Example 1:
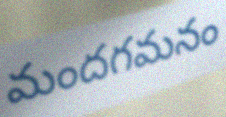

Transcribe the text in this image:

మందగమనం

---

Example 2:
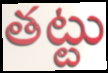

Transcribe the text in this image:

తట్టు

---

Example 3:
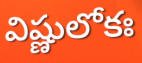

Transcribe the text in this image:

విష్ణులోకః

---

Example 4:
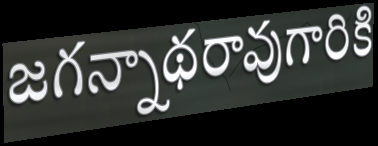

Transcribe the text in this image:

జగన్నాథరావుగారికి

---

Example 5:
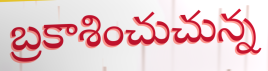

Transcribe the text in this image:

బ్రకాశించుచున్న